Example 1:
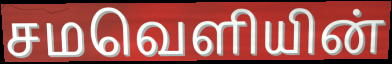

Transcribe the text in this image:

சமவெளியின்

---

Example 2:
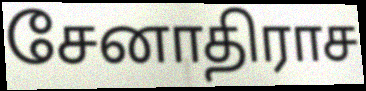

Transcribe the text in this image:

சேனாதிராச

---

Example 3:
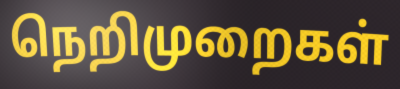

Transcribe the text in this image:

நெறிமுறைகள்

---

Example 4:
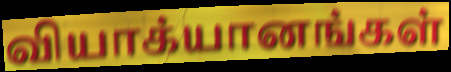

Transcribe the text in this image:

வியாக்யானங்கள்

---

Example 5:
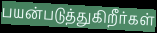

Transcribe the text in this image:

பயன்படுத்துகிறீர்கள்